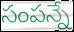
సంపన్నే